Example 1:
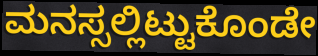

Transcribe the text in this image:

ಮನಸ್ಸಲ್ಲಿಟ್ಟುಕೊಂಡೇ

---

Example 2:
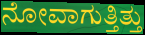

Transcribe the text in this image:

ನೋವಾಗುತ್ತಿತ್ತು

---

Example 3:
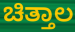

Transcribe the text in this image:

ಚಿತ್ತಾಲ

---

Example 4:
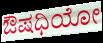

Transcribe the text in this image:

ಔಷಧಿಯೋ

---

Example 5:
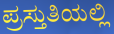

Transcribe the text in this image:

ಪ್ರಸ್ತುತಿಯಲ್ಲಿ